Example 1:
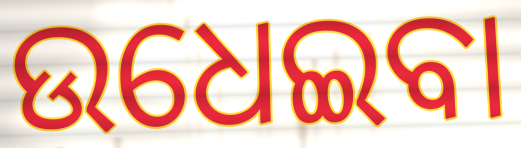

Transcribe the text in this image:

ଉଧେଇବା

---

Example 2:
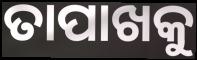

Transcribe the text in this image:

ତାପାଖକୁ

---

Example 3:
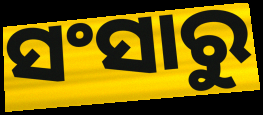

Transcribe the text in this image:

ସଂସାରୁ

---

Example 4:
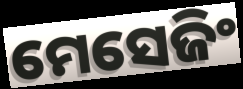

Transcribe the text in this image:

ମେସେଜିଂ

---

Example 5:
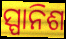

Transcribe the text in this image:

ସ୍ପାନିଶ